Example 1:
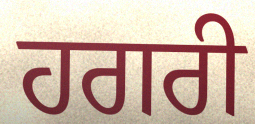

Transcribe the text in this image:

ਹਗਰੀ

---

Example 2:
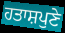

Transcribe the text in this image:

ਹਤਾਸ਼ਪੁਣੇ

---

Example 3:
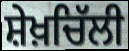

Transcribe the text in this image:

ਸ਼ੇਖ਼ਚਿੱਲੀ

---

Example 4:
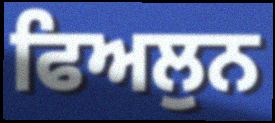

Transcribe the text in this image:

ਫਿਅਲੁਨ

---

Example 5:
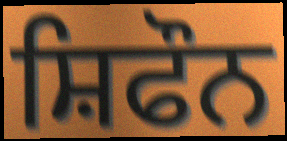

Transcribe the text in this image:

ਸ਼ਿਫੌਨ